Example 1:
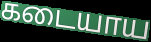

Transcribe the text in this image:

கடையாய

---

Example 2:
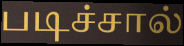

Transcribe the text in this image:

படிச்சால்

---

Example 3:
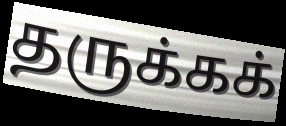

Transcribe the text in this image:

தருக்கக்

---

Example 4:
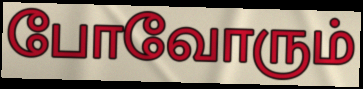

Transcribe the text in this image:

போவோரும்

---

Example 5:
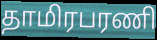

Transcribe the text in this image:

தாமிரபரணி